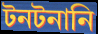
টনটনানি